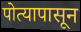
पोत्यापासून